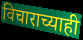
विचाराच्याही